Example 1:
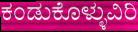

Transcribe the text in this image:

ಕಂಡುಕೊಳ್ಳುವಿರಿ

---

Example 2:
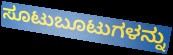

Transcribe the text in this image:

ಸೂಟುಬೂಟುಗಳನ್ನು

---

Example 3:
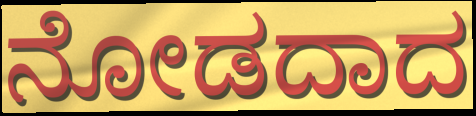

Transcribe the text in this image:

ನೋಡದಾದ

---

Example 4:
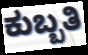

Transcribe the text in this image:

ಕುಬ್ಬತಿ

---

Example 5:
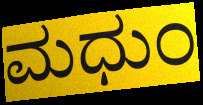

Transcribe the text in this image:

ಮಧುಂ